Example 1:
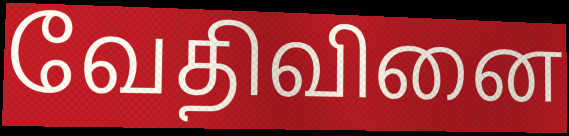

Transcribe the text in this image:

வேதிவினை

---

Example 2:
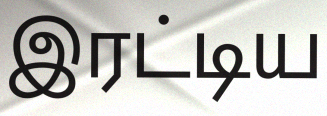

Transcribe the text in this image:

இரட்டிய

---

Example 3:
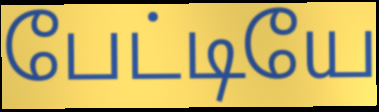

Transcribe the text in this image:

பேட்டியே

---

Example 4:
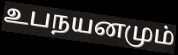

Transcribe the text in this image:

உபநயனமும்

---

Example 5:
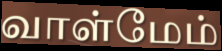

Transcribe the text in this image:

வாள்மேம்